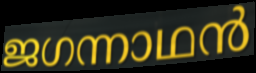
ജഗന്നാഥൻ